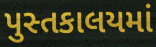
પુસ્તકાલયમાં